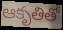
ఆకృతితో